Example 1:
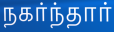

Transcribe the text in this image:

நகர்ந்தார்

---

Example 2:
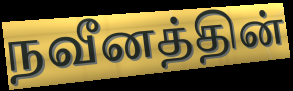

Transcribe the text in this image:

நவீனத்தின்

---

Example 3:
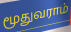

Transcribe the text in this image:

மூதுவராம்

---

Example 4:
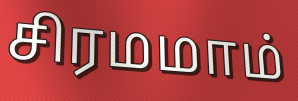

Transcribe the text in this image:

சிரமமாம்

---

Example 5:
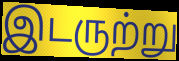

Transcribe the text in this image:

இடருற்று